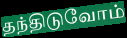
தந்திடுவோம்